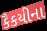
કૈકયીના